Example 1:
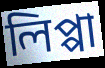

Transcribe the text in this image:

লিপ্পা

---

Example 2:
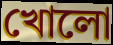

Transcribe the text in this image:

খোলো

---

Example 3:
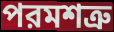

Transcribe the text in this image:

পরমশত্রু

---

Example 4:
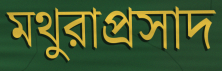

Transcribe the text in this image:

মথুরাপ্রসাদ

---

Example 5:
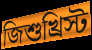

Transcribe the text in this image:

জিশুখ্রিস্ট